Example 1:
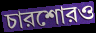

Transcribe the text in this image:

চারশোরও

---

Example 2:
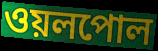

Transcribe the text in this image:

ওয়লপোল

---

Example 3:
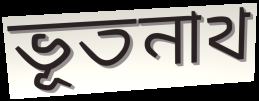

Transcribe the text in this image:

ভূতনাথ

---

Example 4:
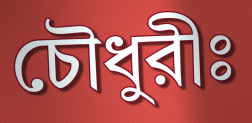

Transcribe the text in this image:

চৌধুরীঃ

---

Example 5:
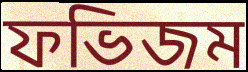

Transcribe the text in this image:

ফভিজম